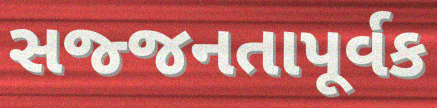
સજ્જનતાપૂર્વક